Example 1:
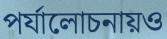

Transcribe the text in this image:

পর্যালোচনায়ও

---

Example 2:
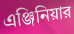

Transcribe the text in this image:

এঞ্জিনিয়ার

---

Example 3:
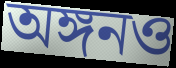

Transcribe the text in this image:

অঙ্গনও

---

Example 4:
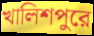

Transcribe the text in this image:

খালিশপুরে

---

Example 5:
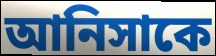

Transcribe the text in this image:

আনিসাকে